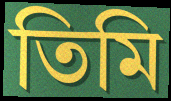
তিমি